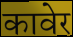
कावेर